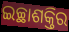
ଇଚ୍ଛାଶକ୍ତିର